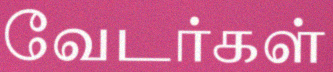
வேடர்கள்